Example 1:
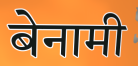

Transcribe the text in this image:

बेनामी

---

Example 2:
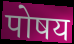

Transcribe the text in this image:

पोषय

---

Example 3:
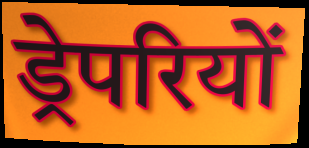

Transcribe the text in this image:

ड्रेपरियों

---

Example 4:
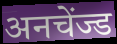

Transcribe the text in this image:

अनचेंज्ड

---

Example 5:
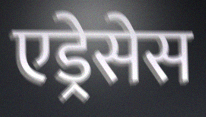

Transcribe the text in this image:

एड्रेसेस